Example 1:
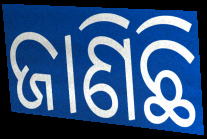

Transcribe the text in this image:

ଜାଣିଛି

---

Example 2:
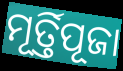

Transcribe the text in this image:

ମୂର୍ତ୍ତିପୂଜା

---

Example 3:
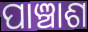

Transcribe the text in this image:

ପାଞ୍ଚାଶ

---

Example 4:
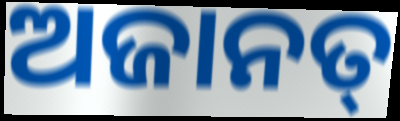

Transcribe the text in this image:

ଅଜାନତ୍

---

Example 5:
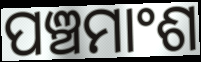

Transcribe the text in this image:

ପଞ୍ଚମାଂଶ